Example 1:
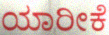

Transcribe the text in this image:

ಯಾರೀಕೆ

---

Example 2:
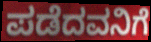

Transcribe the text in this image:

ಪಡೆದವನಿಗೆ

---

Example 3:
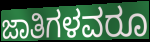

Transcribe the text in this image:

ಜಾತಿಗಳವರೂ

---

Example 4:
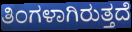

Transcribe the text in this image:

ತಿಂಗಳಾಗಿರುತ್ತದೆ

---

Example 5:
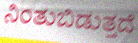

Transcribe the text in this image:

ನಿಂತುಬಿಡುತ್ತದೆ